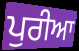
ਪੁਰੀਆ